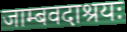
जाम्बवदाश्रयः